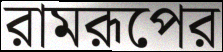
রামরূপের